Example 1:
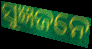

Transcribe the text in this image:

ସୁଜ୍ଞଜନେ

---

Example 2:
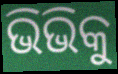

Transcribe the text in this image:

ଭିଭିକୁ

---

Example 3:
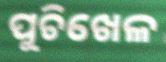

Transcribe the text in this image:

ପୁଚିଖେଳ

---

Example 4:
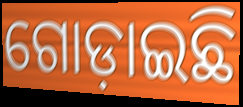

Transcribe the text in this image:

ଗୋଡ଼ାଇଛି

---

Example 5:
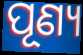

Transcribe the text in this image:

ପୂଣ୍ୟ